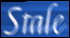
Stale